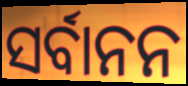
ସର୍ବାନନ